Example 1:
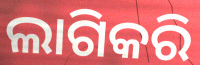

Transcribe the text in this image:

ଲାଗିକରି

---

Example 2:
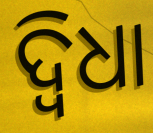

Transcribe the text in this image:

ଦ୍ୱିଧା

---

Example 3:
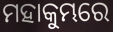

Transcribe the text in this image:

ମହାକୁମ୍ଭରେ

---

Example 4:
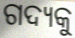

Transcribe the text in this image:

ଗଦ୍ୟକୁ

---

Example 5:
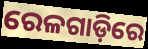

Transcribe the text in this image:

ରେଳଗାଡ଼ିରେ